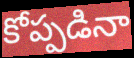
కోప్పడినా